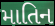
માતિન